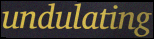
undulating